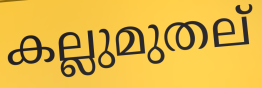
കല്ലുമുതല്